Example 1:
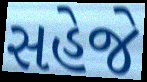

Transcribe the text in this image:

સહેજે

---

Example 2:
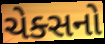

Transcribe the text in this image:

ચેક્સનો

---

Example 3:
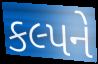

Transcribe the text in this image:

કલ્પને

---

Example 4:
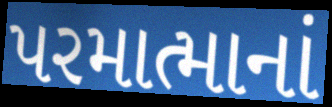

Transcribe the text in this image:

પરમાત્માનાં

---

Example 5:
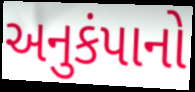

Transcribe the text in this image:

અનુકંપાનો